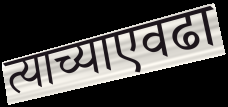
त्याच्याएवढा